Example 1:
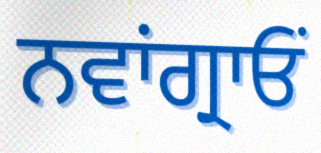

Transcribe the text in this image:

ਨਵਾਂਗ੍ਰਾਓਂ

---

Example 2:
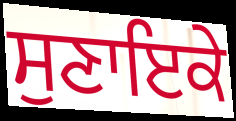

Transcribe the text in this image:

ਸੁਣਾਇਕੇ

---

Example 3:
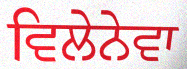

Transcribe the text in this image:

ਵਿਲੇਨੇਵਾ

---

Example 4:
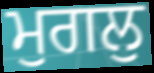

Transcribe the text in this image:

ਮੁਗਲੁ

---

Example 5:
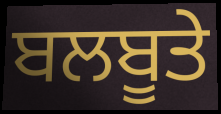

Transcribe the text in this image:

ਬਲਬੂਤੇ